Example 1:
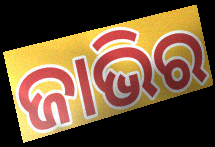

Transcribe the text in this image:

ଜାଭିର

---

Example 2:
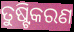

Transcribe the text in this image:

ତୁଷ୍ଟିକରଣ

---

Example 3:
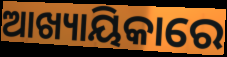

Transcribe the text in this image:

ଆଖ୍ୟାୟିକାରେ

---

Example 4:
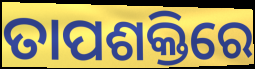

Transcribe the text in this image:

ତାପଶକ୍ତିରେ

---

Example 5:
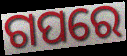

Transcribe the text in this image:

ଗପରେ